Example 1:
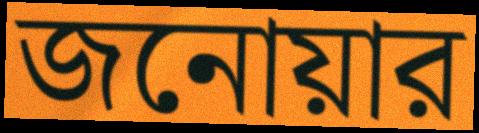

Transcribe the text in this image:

জনোয়ার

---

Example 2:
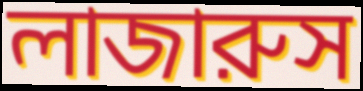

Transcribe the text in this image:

লাজারুস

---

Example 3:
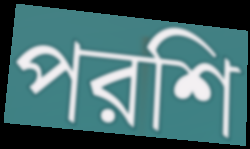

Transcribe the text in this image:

পরশি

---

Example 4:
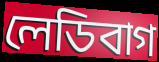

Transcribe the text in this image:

লেডিবাগ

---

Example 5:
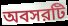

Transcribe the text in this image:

অবসরটি